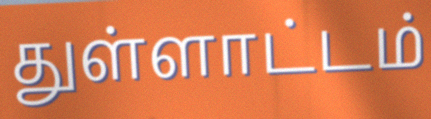
துள்ளாட்டம்